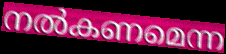
നൽകണമെന്ന